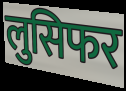
लुसिफर